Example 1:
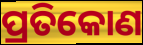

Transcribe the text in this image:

ପ୍ରତିକୋଣ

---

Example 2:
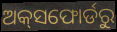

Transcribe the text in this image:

ଅକ୍‌ସଫୋର୍ଡରୁ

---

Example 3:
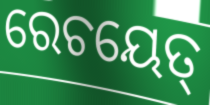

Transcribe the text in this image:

ରେଚୟେତ୍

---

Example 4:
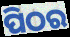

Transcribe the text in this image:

ପିଠର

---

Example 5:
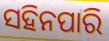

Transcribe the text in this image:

ସହିନପାରି